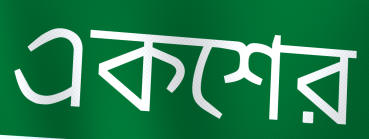
একশের